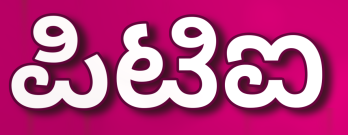
ಪಿಟಿಐ